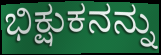
ಭಿಕ್ಷುಕನನ್ನು